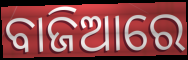
ବାଜିଆରେ